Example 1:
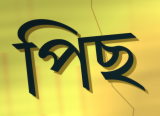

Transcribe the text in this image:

পিছ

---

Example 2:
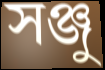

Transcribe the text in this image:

সঞ্জু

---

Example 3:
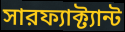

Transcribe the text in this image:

সারফ্যাক্ট্যান্ট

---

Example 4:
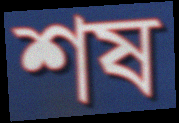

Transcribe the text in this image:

শষ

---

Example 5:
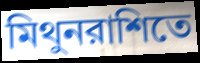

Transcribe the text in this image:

মিথুনরাশিতে